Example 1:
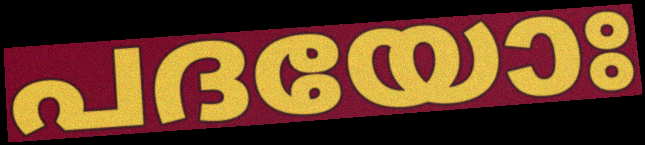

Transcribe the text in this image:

പദയോഃ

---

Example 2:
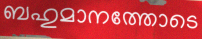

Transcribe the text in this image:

ബഹുമാനത്തോടെ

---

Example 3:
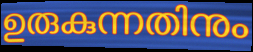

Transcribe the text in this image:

ഉരുകുന്നതിനും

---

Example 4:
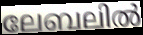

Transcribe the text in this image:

ലേബലിൽ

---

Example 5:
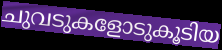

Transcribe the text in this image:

ചുവടുകളോടുകൂടിയ